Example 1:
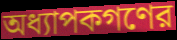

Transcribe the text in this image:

অধ্যাপকগণের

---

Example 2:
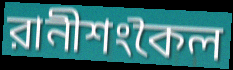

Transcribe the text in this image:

রানীশংকৈল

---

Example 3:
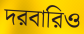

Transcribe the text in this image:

দরবারিও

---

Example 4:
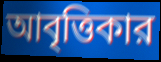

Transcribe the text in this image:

আবৃত্তিকার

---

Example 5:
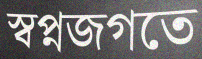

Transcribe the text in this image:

স্বপ্নজগতে